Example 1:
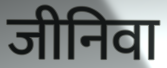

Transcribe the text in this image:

जीनिवा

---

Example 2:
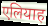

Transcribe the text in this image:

एलियाह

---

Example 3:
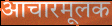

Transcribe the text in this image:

आचारमूलक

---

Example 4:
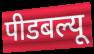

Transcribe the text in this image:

पीडबल्यू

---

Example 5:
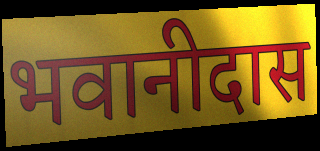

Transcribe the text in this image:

भवानीदास